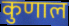
कुणाल